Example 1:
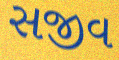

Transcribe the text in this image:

સજીવ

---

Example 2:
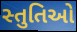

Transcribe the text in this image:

સ્તુતિઓ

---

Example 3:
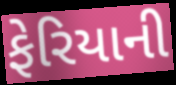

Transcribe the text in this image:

ફેરિયાની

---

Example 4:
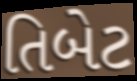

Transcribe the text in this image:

તિબેટ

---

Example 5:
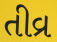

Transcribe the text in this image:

તીવ્ર